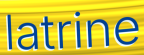
latrine